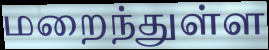
மறைந்துள்ள